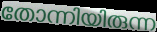
തോന്നിയിരുന്ന